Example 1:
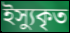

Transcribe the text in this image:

ইস্যুকৃত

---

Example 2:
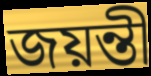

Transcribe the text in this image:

জয়ন্তী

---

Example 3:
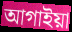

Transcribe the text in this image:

আগাইয়া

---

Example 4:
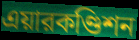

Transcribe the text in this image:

এয়ারকণ্ডিশন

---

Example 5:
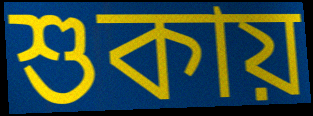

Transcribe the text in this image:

শুকায়